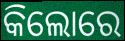
କିଲୋରେ